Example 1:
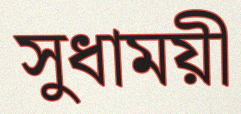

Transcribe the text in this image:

সুধাময়ী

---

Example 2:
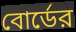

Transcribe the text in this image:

বোর্ডের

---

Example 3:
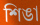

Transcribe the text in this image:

শিঙা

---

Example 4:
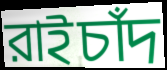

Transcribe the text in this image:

রাইচাঁদ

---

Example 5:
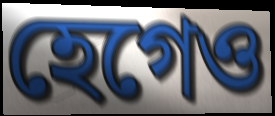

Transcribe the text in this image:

হেগেও